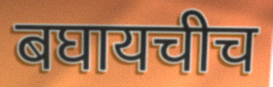
बघायचीच